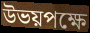
উভয়পক্ষে